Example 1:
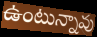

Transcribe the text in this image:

ఉంటున్నావు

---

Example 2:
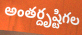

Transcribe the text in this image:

అంతర్దృష్టిగల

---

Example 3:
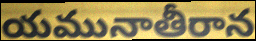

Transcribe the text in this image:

యమునాతీరాన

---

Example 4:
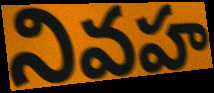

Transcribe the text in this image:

నివహ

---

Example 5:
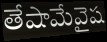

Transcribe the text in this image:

తేషామేవైష